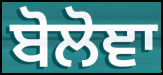
ਬੋਲੋਞਾ